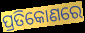
ପ୍ରତିକୋଣରେ